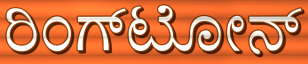
ರಿಂಗ್‌ಟೋನ್